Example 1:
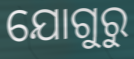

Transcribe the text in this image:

ଯୋଗୁରୁ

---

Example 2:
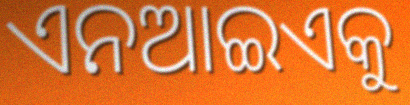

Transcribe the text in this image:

ଏନଆଇଏକୁ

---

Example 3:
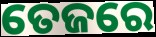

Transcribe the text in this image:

ତେଜରେ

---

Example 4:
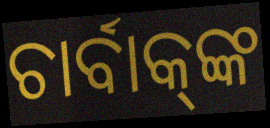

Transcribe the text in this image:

ଚାର୍ବାକ୍‌ଙ୍କ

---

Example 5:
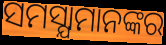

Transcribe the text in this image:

ସମସ୍ଯାମାନଙ୍କର